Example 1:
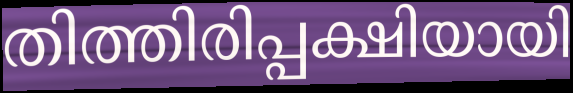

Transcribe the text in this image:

തിത്തിരിപ്പക്ഷിയായി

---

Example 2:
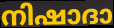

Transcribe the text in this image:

നിഷാദാ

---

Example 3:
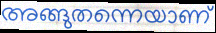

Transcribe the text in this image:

അങ്ങുതന്നെയാണ്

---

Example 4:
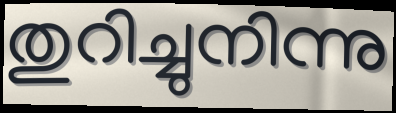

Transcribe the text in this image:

തുറിച്ചുനിന്നു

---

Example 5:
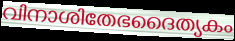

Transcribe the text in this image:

വിനാശിതേഭദൈത്യകം